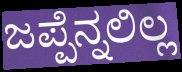
ಜಪ್ಪೆನ್ನಲಿಲ್ಲ